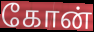
கோன்